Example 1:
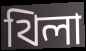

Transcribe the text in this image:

থিলা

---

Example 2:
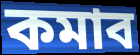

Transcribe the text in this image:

কমাব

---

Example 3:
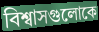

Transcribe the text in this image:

বিশ্বাসগুলোকে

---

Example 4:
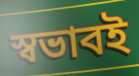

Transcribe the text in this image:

স্বভাবই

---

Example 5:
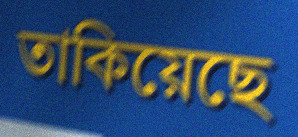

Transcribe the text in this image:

তাকিয়েছে